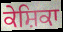
ਕੇਸ਼ਿਕਾ